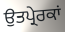
ਉਤਪ੍ਰੇਰਕਾਂ